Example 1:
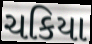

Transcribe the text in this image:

ચકિયા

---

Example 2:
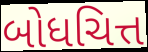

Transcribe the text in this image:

બોધચિત્ત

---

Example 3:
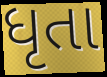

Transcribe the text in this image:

ધૃતા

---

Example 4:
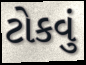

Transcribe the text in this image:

ટોકવું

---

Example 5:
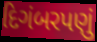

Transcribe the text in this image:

દિગંબરપણું